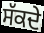
ਸੱਕਦੇ